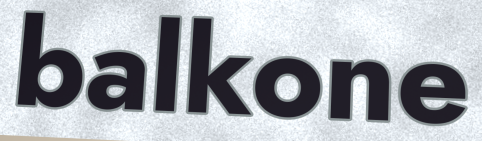
balkone